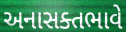
અનાસક્તભાવે